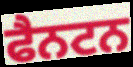
ਫੈਨਟਨ